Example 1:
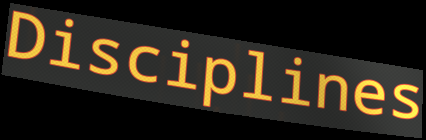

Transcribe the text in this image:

Disciplines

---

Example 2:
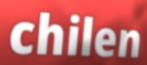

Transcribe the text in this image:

chilen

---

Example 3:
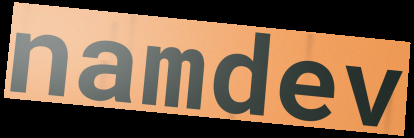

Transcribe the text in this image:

namdev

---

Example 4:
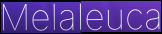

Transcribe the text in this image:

Melaleuca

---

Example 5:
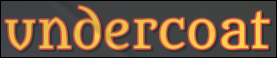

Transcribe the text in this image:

undercoat